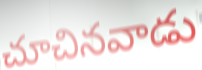
చూచినవాడు